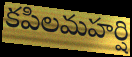
కపిలమహర్షి